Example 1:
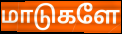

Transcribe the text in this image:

மாடுகளே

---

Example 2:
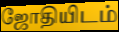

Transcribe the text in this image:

ஜோதியிடம்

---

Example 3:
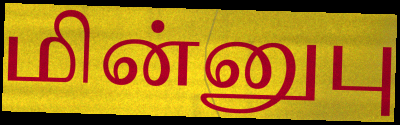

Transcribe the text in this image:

மின்னுபு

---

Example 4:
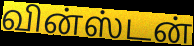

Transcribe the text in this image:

வின்ஸ்டன்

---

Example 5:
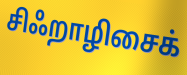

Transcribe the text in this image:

சிஃறாழிசைக்